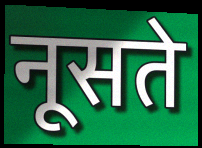
नूसते